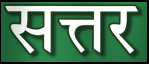
सत्तर